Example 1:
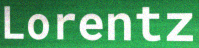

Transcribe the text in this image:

Lorentz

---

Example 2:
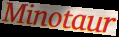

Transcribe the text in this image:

Minotaur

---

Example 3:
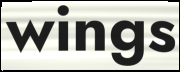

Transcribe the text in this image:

wings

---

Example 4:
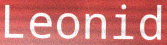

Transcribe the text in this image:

Leonid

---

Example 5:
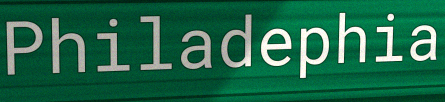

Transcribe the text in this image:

Philadephia